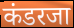
कंडरजा